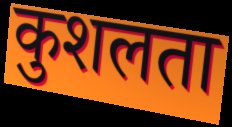
कुशलता